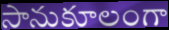
సానుకూలంగా